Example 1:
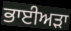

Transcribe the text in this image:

ਭਾਈਅੜਾ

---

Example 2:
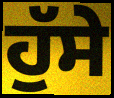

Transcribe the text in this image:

ਹੁੱਸੇ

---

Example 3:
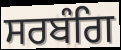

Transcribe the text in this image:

ਸਰਬੰਗਿ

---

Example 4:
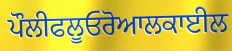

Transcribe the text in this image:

ਪੌਲੀਫਲੂਓਰੋਆਲਕਾਈਲ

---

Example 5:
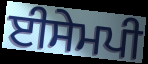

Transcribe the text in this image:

ਈਸੇਮਪੀ